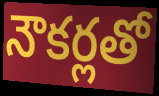
నౌకర్లతో